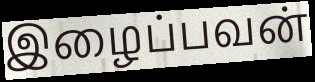
இழைப்பவன்